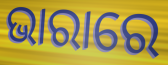
ଭାରାରେ